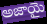
అజాయై